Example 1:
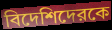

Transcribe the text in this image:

বিদেশিদেরকে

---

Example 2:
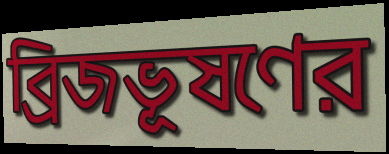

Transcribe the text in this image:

ব্রিজভূষণের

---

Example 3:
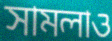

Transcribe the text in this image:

সামলাও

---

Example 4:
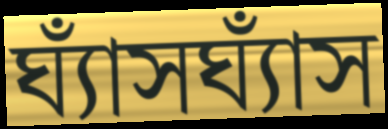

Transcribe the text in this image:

ঘ্যাঁসঘ্যাঁস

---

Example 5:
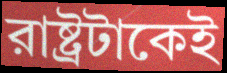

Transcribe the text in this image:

রাষ্ট্রটাকেই